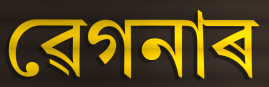
ৱেগনাৰ